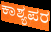
ಕಾಶ್ಯಪರ